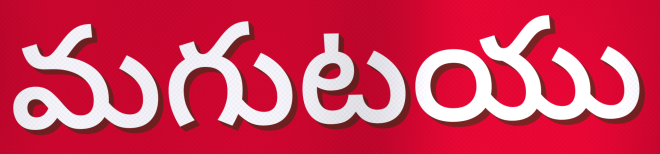
మగుటయు